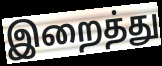
இறைத்து